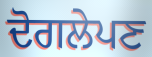
ਦੋਗਲੇਪਣ